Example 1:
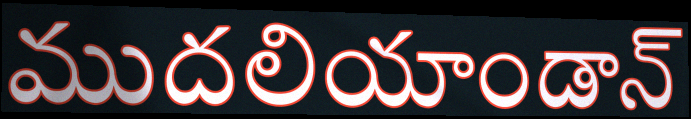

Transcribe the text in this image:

ముదలియాండాన్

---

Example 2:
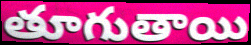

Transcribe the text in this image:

తూగుతాయి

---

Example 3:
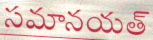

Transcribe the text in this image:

సమానయత్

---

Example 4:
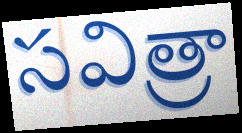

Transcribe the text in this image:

సవిత్రా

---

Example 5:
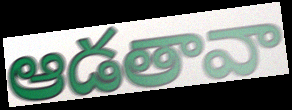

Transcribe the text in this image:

ఆడతావా